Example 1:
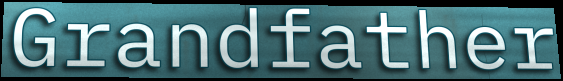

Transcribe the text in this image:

Grandfather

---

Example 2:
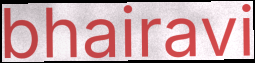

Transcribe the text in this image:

bhairavi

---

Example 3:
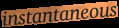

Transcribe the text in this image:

instantaneous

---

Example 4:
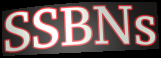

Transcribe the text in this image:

SSBNs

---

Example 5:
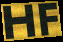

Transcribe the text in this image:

HF